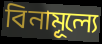
বিনামূল্যে